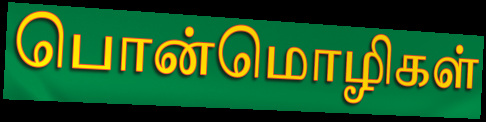
பொன்மொழிகள்